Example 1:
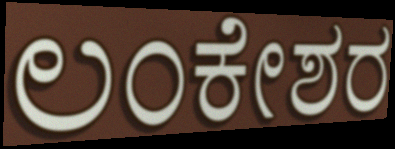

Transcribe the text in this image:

ಲಂಕೇಶರ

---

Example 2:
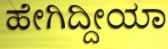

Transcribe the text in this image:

ಹೇಗಿದ್ದೀಯಾ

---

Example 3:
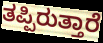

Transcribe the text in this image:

ತಪ್ಪಿರುತ್ತಾರೆ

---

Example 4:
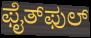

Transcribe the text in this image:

ಫೈತ್‌ಫುಲ್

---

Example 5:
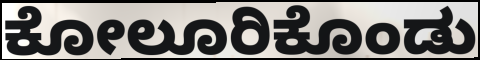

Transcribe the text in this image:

ಕೋಲೂರಿಕೊಂಡು